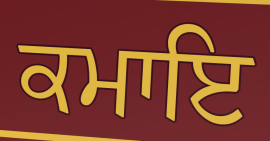
ਕਮਾਇ